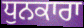
ਧੁਨਕਾਰਾ